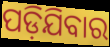
ପଡ଼ିଯିବାର